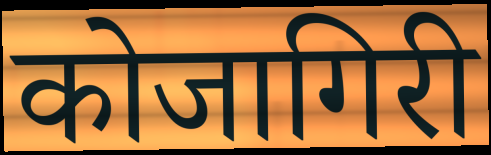
कोजागिरी